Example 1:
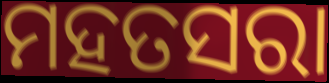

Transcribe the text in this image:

ମହତସରା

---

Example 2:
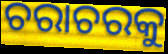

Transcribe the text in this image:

ଚରାଚରକୁ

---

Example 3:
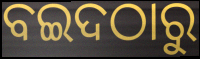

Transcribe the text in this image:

ବଇଦଠାରୁ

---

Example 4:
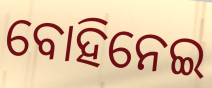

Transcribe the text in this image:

ବୋହିନେଇ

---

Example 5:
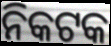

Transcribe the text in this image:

ନିକଟକ